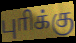
புரிக்கு